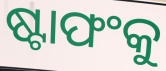
ଷ୍ଟାଫଂକୁ